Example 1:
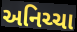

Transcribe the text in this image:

અનિચ્ચા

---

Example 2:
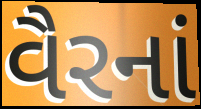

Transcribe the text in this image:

વૈરનાં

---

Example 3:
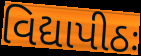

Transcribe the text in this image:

વિદ્યાપીઠઃ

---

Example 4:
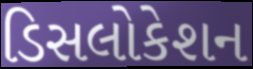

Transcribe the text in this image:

ડિસલોકેશન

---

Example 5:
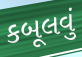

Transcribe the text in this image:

કબૂલવું